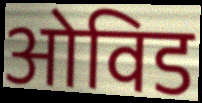
ओविड